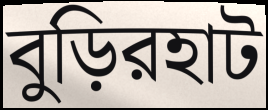
বুড়িরহাট